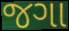
જગા